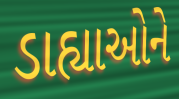
ડાહ્યાઓને